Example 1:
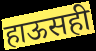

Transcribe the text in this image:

हाऊसही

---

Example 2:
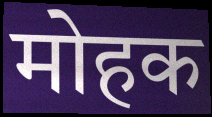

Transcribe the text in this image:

मोहक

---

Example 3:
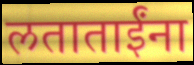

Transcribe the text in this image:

लताताईंना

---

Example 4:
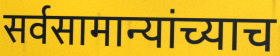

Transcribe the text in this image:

सर्वसामान्यांच्याच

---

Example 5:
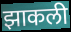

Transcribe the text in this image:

झाकली